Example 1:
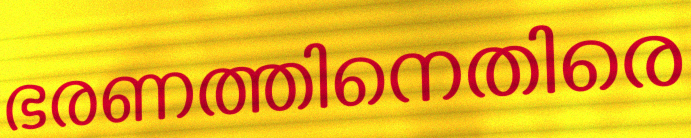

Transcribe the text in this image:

ഭരണത്തിനെതിരെ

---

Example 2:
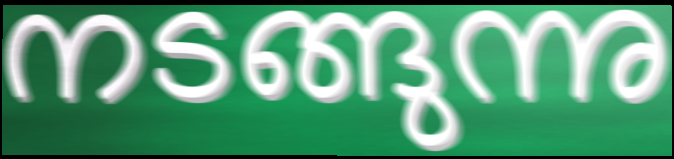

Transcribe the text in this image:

നടങ്ങുന്നു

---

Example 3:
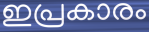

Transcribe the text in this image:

ഇപ്രകാരം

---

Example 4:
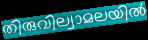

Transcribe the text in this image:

തിരുവില്വാമലയിൽ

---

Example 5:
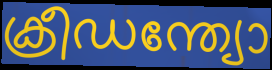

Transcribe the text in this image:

ക്രീഡന്ത്യോ